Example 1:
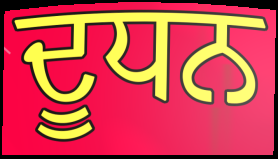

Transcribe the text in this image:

ਦੂਧਨ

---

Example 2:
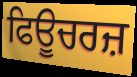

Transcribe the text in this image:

ਫਿਊਚਰਜ਼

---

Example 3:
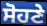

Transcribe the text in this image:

ਸੋਹਣੇ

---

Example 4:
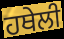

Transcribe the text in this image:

ਹਥੇਲੀ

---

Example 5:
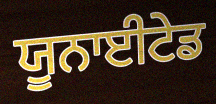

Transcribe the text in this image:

ਯੂਨਾਈਟੇਡ